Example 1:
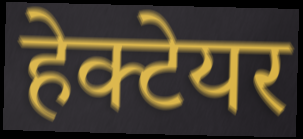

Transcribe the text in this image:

हेक्टेयर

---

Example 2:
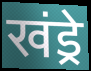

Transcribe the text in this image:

खंड्रे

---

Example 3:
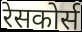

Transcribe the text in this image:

रेसकोर्स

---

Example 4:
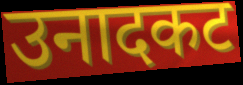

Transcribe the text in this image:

उनादकट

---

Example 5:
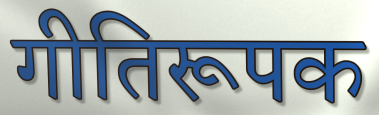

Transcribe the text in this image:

गीतिरूपक